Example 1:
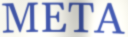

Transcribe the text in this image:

META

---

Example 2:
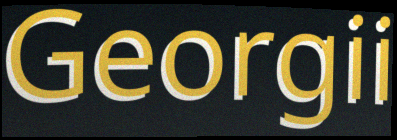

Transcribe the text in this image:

Georgii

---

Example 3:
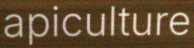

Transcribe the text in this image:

apiculture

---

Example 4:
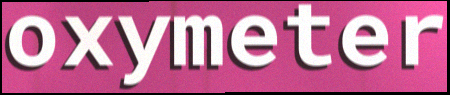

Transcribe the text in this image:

oxymeter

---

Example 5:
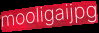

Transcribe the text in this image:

mooligaijpg